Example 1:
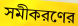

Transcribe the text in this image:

সমীকরণের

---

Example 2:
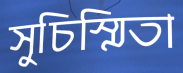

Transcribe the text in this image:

সুচিস্মিতা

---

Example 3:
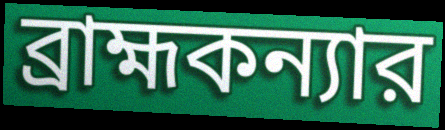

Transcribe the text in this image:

ব্রাহ্মকন্যার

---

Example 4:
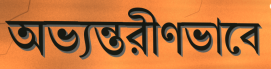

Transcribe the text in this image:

অভ্যন্তরীণভাবে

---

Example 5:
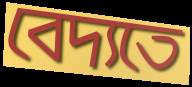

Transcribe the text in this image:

বেদ্যতে